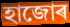
হাজোৰ